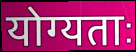
योग्यताः